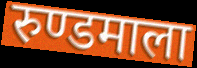
रुण्डमाला